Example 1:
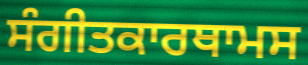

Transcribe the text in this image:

ਸੰਗੀਤਕਾਰਥਾਮਸ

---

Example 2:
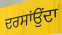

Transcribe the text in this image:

ਦਰਸਾਂਉਂਦਾ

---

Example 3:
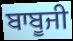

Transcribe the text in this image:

ਬਾਬੂਜੀ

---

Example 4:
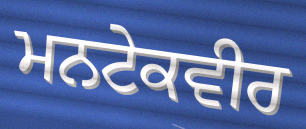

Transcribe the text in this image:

ਮਨਟੇਕਵੀਰ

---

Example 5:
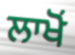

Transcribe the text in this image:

ਲਾਖੋਂ